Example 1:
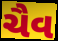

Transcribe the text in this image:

ચૈવ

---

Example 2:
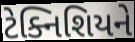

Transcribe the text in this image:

ટેક્નિશિયને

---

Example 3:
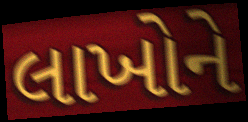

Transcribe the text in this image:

લાખોને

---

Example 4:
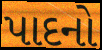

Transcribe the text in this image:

પાદનો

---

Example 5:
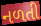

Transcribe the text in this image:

નળતી